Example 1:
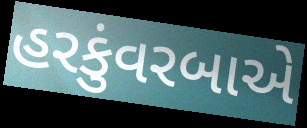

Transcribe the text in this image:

હરકુંવરબાએ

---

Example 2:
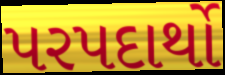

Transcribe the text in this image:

પરપદાર્થો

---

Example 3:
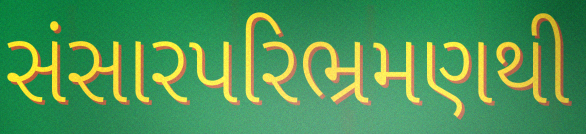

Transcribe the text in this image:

સંસારપરિભ્રમણથી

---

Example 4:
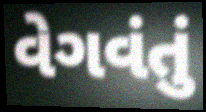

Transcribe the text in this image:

વેગવંતું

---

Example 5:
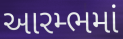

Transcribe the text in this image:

આરમ્ભમાં